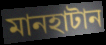
মানহাটান